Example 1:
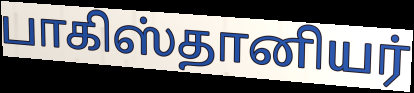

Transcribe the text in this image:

பாகிஸ்தானியர்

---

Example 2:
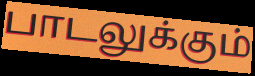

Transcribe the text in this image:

பாடலுக்கும்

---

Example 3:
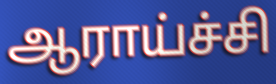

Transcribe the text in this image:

ஆராய்ச்சி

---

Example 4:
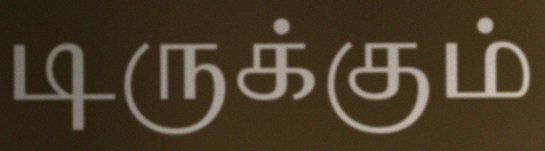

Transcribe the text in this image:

டிருக்கும்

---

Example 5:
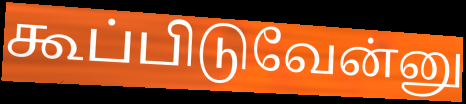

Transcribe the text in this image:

கூப்பிடுவேன்னு